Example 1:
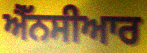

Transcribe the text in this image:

ਐੱਨਸੀਆਰ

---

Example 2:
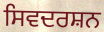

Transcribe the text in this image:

ਸਿਵਦਰਸ਼ਨ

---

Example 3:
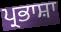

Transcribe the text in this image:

ਪ੍ਰਭਾਸ਼ਾ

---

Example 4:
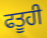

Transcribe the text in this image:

ਫਤੂਹੀ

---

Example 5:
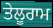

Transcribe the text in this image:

ਤੇਲੂਰਾਮ